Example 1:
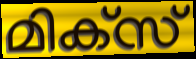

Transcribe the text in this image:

മിക്‌സ്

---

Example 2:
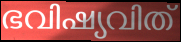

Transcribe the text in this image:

ഭവിഷ്യവിത്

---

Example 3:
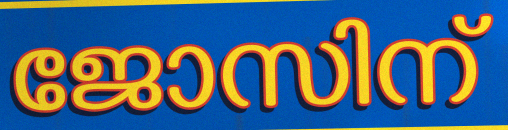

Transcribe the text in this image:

ജോസിന്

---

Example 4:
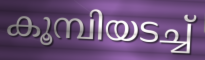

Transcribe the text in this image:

കൂമ്പിയടച്ച്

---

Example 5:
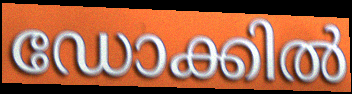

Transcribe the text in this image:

ഡോക്കിൽ